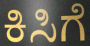
ಕಿಸಿಗೆ